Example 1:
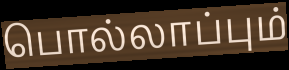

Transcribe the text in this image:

பொல்லாப்பும்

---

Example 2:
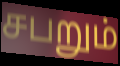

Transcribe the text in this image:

சபறும்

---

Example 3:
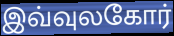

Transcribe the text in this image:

இவ்வுலகோர்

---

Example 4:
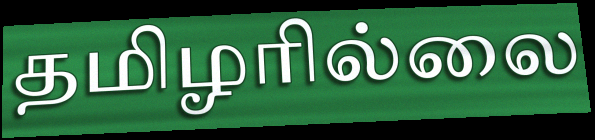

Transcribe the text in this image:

தமிழரில்லை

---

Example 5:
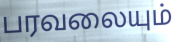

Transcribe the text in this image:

பரவலையும்